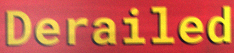
Derailed